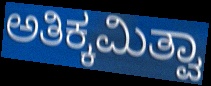
ಅತಿಕ್ಕಮಿತ್ವಾ